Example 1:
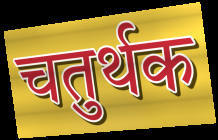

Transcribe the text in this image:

चतुर्थक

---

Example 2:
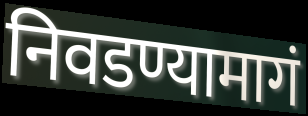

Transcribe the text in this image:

निवडण्यामागं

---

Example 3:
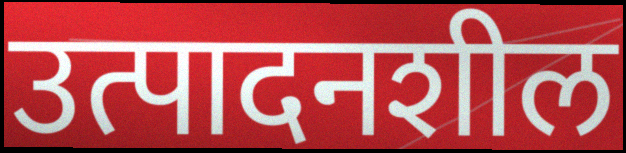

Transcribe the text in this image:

उत्पादनशील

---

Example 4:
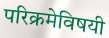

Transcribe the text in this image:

परिक्रमेविषयी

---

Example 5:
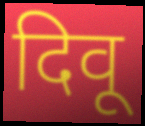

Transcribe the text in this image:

दिवू